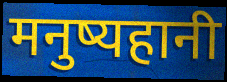
मनुष्यहानी